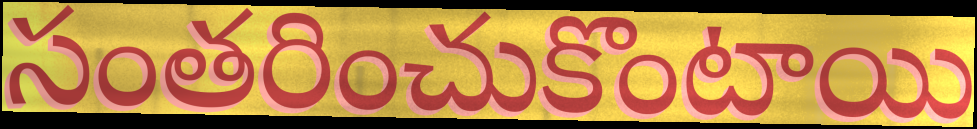
సంతరించుకొంటాయి